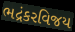
ભદ્રંકરવિજય